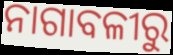
ନାଗାବଳୀରୁ